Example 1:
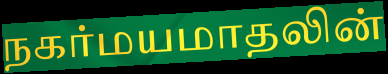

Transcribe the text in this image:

நகர்மயமாதலின்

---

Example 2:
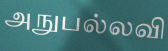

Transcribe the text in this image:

அநுபல்லவி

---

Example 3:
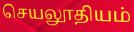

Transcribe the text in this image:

செயலூதியம்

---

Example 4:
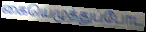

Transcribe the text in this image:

கையெழுத்துப்போட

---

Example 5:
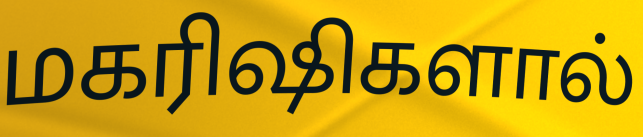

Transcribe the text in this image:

மகரிஷிகளால்